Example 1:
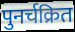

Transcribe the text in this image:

पुनर्चक्रित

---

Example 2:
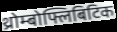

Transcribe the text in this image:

थ्रोम्बोफ्लिबिटिक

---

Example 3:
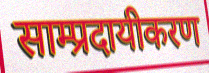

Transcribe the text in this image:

साम्प्रदायीकरण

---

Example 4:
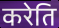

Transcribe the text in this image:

करेति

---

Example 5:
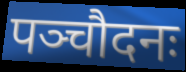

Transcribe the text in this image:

पञ्चौदनः